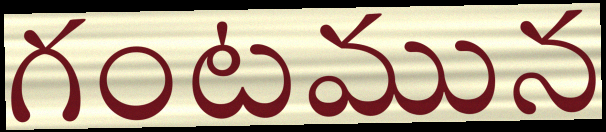
గంటమున